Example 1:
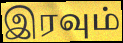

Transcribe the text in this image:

இரவும்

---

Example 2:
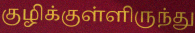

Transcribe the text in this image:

குழிக்குள்ளிருந்து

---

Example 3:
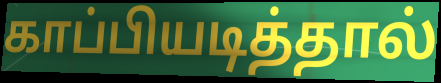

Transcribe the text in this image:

காப்பியடித்தால்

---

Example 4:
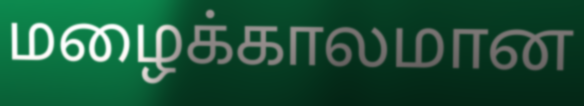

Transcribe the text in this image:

மழைக்காலமான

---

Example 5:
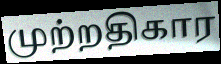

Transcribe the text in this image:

முற்றதிகார